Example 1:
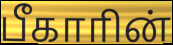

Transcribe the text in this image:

பீகாரின்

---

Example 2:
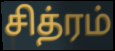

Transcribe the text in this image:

சித்ரம்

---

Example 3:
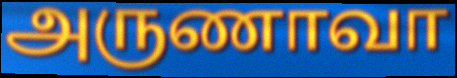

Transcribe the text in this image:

அருணாவா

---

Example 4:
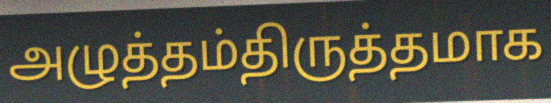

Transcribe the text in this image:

அழுத்தம்திருத்தமாக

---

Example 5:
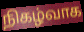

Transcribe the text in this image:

நிகழ்வாக